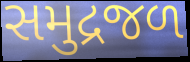
સમુદ્રજળ